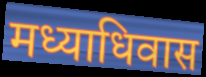
मध्याधिवास